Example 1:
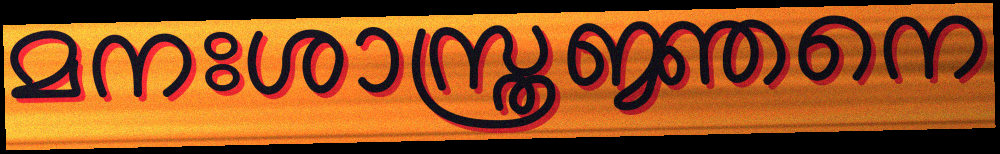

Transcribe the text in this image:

മനഃശാസ്ത്രജ്ഞനെ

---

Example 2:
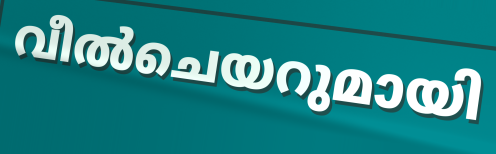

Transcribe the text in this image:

വീൽചെയറുമായി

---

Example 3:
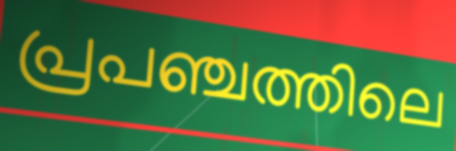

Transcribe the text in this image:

പ്രപഞ്ചത്തിലെ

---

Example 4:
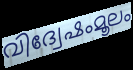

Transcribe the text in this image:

വിദ്വേഷംമൂലം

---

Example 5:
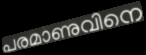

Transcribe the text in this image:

പരമാണുവിനെ